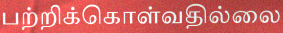
பற்றிக்கொள்வதில்லை